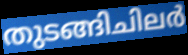
തുടങ്ങിചിലർ